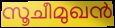
സൂചീമുഖൻ